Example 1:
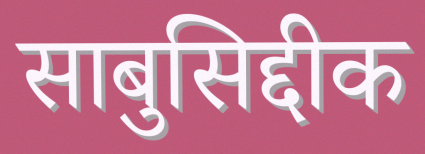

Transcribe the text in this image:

साबुसिद्दीक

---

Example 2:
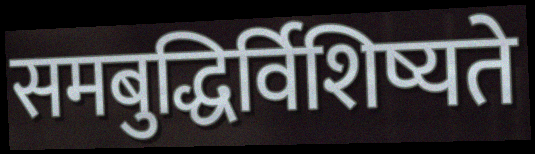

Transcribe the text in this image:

समबुद्धिर्विशिष्यते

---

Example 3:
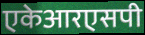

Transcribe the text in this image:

एकेआरएसपी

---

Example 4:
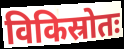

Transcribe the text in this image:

विकिस्रोतः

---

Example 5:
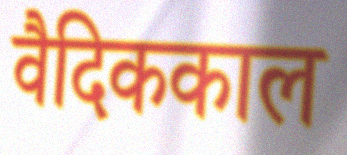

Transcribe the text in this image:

वैदिककाल